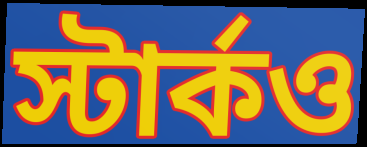
স্টার্কও